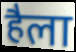
हैला